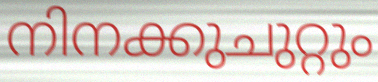
നിനക്കുചുറ്റും